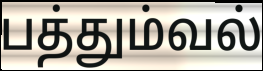
பத்தும்வல்